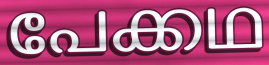
പേക്കഥ